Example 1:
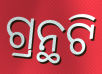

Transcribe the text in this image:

ଗ୍ରନ୍ଥଟି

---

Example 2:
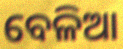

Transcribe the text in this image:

ବେଳିଆ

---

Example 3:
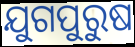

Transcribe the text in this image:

ଯୁଗପୁରୁଷ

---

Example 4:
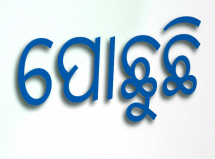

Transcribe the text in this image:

ପୋଛୁଛି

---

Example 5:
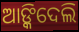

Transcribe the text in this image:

ଆଙ୍କିଦେଲି